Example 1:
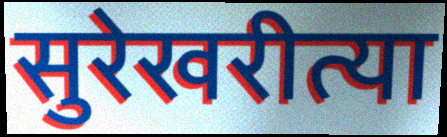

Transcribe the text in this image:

सुरेखरीत्या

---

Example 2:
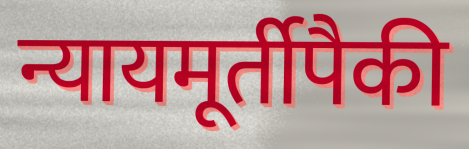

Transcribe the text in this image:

न्यायमूर्तीपैकी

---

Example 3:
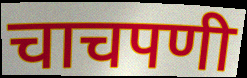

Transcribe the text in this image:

चाचपणी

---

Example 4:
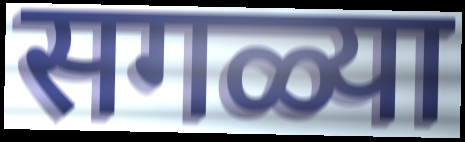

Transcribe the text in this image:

सगळ्या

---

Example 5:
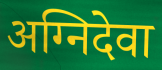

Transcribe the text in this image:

अग्निदेवा